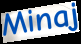
Minaj